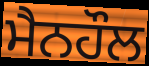
ਮੈਨਹੌਲ